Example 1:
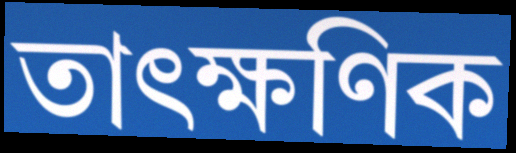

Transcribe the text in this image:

তাৎক্ষণিক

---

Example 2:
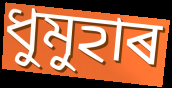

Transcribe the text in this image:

ধুমুহাৰ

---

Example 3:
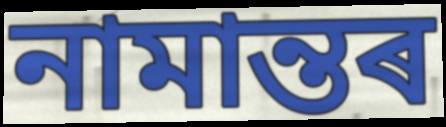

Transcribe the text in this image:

নামান্তৰ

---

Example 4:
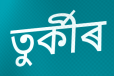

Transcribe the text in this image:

তুৰ্কীৰ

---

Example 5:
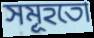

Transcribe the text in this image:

সমূহতো